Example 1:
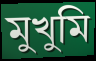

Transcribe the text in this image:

মুখুমি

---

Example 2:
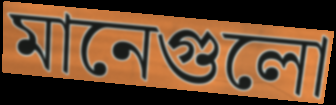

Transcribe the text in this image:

মানেগুলো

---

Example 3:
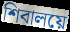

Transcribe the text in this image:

শিবালয়ে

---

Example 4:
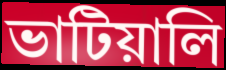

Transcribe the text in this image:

ভাটিয়ালি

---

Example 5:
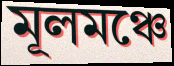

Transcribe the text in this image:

মূলমঞ্চে